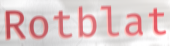
Rotblat